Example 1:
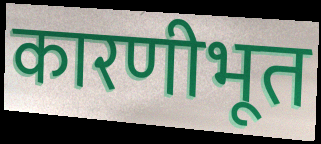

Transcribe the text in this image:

कारणीभूत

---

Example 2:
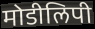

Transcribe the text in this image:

मोडीलिपी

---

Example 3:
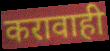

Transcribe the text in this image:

करावाही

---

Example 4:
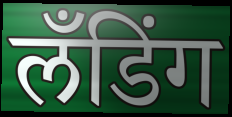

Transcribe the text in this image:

लँडिंग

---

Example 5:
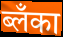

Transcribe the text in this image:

ब्लँका